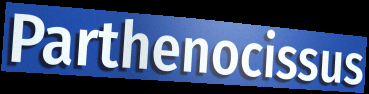
Parthenocissus